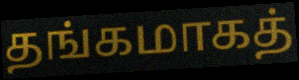
தங்கமாகத்